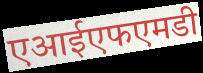
एआईएफएमडी